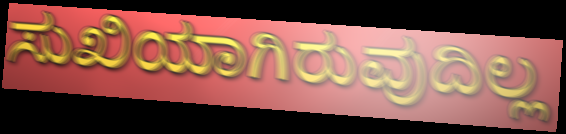
ಸುಖಿಯಾಗಿರುವುದಿಲ್ಲ